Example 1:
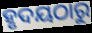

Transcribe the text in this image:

ହୃଦୟଠାରୁ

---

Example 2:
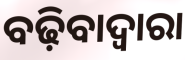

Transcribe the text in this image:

ବଢ଼ିବାଦ୍ୱାରା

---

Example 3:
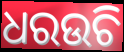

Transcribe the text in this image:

ଧରଉଚି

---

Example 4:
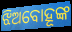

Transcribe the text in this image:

ଝିଅବୋହୂଙ୍କ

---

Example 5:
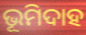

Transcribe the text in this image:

ଭୂମିଦାହ